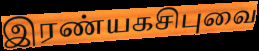
இரண்யகசிபுவை